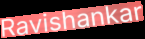
Ravishankar